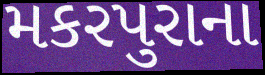
મકરપુરાના